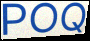
POQ